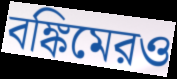
বঙ্কিমেরও